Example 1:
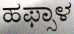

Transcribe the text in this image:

ಹಫ್ಸಾಳ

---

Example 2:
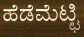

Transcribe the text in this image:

ಹೆಡೆಮೆಟ್ಟಿ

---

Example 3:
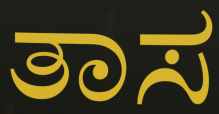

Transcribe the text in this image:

ತಾಸ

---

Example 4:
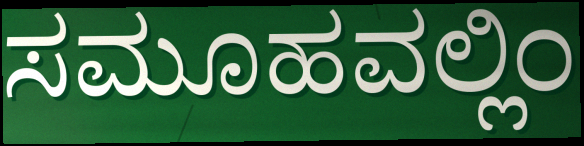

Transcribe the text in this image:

ಸಮೂಹವಲ್ಲಿಂ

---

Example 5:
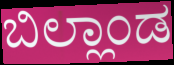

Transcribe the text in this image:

ಬಿಲ್ಲಾಂಡ